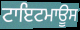
ਟਾਇਟਮਾਊਸ